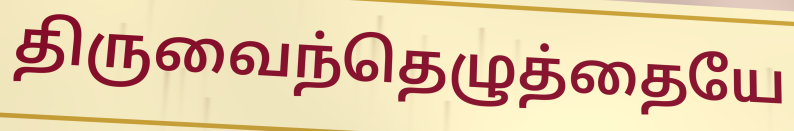
திருவைந்தெழுத்தையே